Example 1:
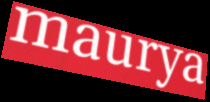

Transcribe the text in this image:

maurya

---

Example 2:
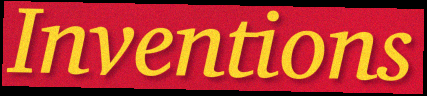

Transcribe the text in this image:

Inventions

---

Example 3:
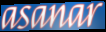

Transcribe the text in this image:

asanar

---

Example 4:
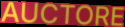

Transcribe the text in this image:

AUCTORE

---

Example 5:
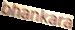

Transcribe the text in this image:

bhankara